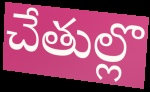
చేతుల్లొ